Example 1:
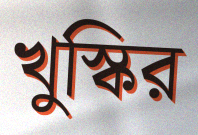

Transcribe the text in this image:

খুস্কির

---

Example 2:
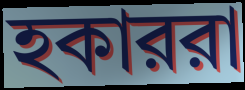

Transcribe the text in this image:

হকাররা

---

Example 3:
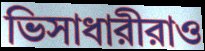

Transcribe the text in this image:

ভিসাধারীরাও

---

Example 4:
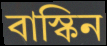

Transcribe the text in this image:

বাস্কিন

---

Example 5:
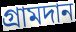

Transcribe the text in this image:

গ্রামদান